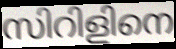
സിറിളിനെ